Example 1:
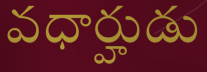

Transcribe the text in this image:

వధార్హుడు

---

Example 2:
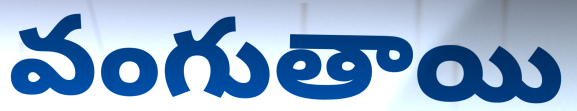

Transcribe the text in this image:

వంగుతాయి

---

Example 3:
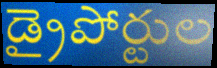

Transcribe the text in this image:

డ్రైపోర్టుల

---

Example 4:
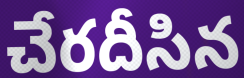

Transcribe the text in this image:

చేరదీసిన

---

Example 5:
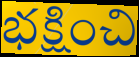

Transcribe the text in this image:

భక్షించి